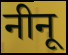
नीनू